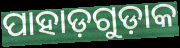
ପାହାଡ଼ଗୁଡ଼ାକ